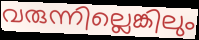
വരുന്നില്ലെങ്കിലും